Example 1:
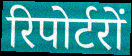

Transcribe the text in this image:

रिपोर्टरों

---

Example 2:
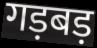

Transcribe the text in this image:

गड़बड़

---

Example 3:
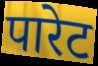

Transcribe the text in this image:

पारेट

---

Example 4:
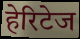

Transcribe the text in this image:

हेरिटेज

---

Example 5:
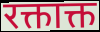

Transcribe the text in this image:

रक्ताक्त